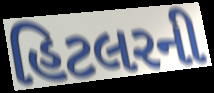
હિટલરની